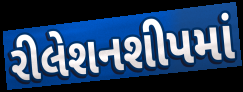
રીલેશનશીપમાં